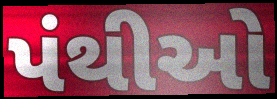
પંથીઓ